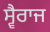
ਸ੍ਵੈਰਾਜ